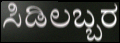
ಸಿಡಿಲಬ್ಬರ